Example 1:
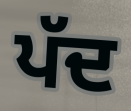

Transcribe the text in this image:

ਪੱਦ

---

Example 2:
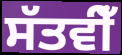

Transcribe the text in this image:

ਸੱਤਵੀਁ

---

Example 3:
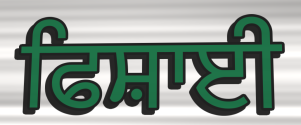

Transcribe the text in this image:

ਫਿਸ਼ਾਈ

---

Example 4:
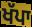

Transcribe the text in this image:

ਖੱਪਾ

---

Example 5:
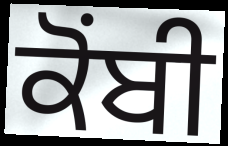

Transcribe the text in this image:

ਕੋਂਬੀ